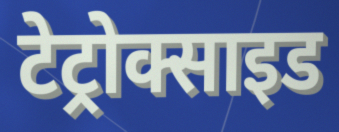
टेट्रोक्साइड